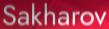
Sakharov